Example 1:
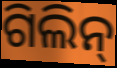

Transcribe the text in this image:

ଗିଲିନ୍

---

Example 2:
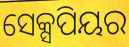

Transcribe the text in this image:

ସେକ୍ସପିୟର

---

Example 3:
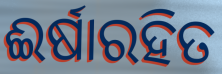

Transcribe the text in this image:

ଈର୍ଷାରହିତ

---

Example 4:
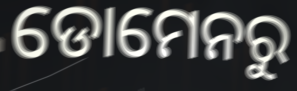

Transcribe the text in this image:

ଡୋମେନରୁ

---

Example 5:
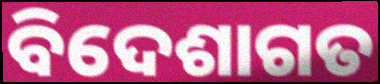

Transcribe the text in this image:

ବିଦେଶାଗତ